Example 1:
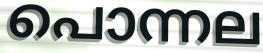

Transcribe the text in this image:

പൊന്നല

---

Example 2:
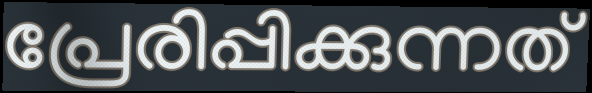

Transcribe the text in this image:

പ്രേരിപ്പിക്കുന്നത്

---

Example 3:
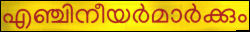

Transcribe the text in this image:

എഞ്ചിനീയർമാർക്കും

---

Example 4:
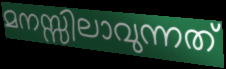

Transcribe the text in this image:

മനസ്സിലാവുന്നത്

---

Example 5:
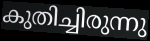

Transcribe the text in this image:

കുതിച്ചിരുന്നു